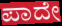
ಪಾದೇ